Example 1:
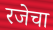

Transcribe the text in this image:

रजेचा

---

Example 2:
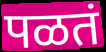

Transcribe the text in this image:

पळतं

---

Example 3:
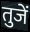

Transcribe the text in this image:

तुजें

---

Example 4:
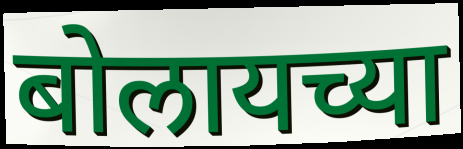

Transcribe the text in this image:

बोलायच्या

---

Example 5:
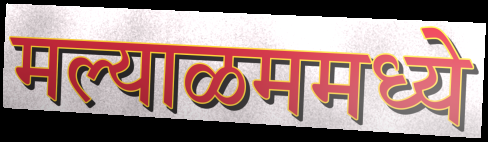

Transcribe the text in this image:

मल्याळममध्ये